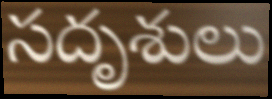
సదృశులు